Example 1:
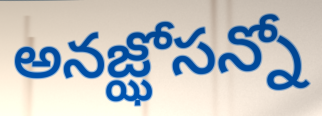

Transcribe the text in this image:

అనజ్ఝోసన్నో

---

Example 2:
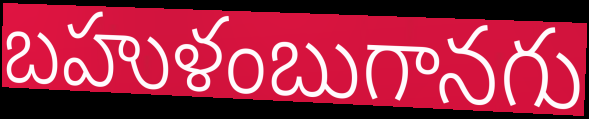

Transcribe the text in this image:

బహుళంబుగానగు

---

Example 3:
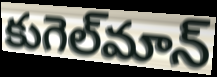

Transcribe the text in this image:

కుగెల్‌మాన్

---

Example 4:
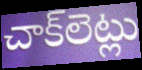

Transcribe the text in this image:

చాక్‌లెట్లు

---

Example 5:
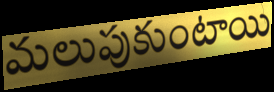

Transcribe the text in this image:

మలుపుకుంటాయి